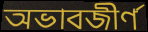
অভাবজীর্ণ